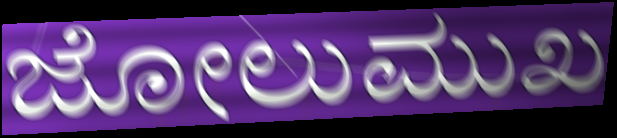
ಜೋಲುಮುಖ